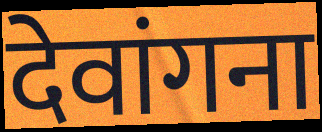
देवांगना